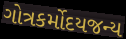
ગોત્રકર્મોદયજન્ય